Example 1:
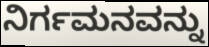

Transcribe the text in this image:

ನಿರ್ಗಮನವನ್ನು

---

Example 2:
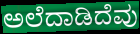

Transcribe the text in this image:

ಅಲೆದಾಡಿದೆವು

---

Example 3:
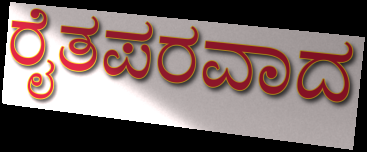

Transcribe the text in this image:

ರೈತಪರವಾದ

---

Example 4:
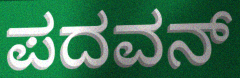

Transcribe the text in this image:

ಪದವನ್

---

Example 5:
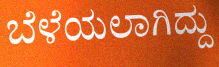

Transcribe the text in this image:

ಬೆಳೆಯಲಾಗಿದ್ದು